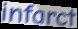
infarct